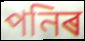
পনিৰ